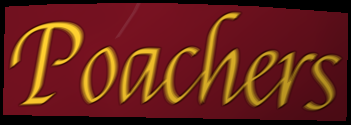
Poachers